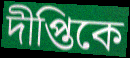
দীপ্তিকে